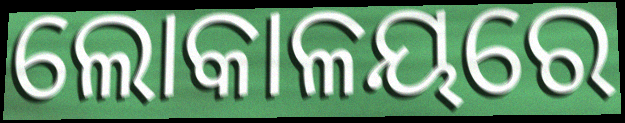
ଲୋକାଳୟରେ